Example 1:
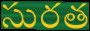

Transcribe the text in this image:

సురత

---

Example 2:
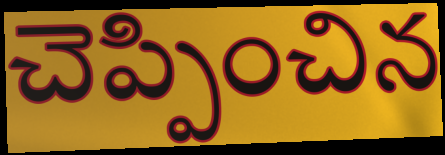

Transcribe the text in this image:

చెప్పించిన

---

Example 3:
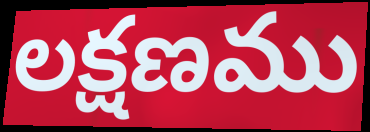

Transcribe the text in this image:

లక్షణము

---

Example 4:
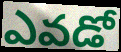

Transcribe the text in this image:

ఎవడో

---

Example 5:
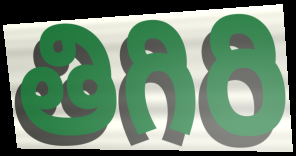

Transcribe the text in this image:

తిగిరి